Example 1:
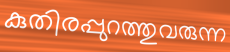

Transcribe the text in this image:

കുതിരപ്പുറത്തുവരുന്ന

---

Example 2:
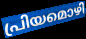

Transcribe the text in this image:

പ്രിയമൊഴി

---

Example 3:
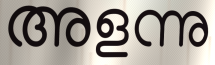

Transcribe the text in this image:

അളന്നു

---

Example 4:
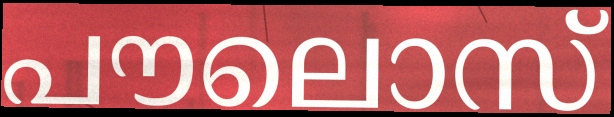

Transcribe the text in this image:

പൗലൊസ്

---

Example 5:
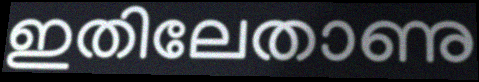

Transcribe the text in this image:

ഇതിലേതാണു